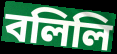
বলিলি